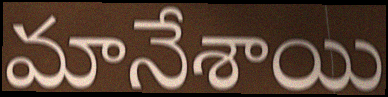
మానేశాయి